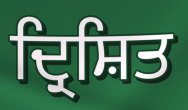
ਦ੍ਰਿਸ਼ਿਤ